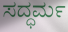
ಸದ್ಧರ್ಮ